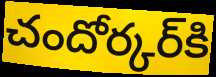
చందోర్కర్‌కి